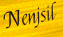
Nenjsil